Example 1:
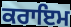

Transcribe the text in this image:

ਕਰਾਇਮ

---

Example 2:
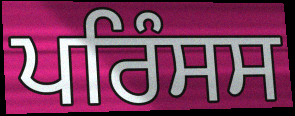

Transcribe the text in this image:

ਪਰਿੰਸਸ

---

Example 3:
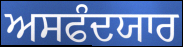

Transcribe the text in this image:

ਅਸਫੰਦਯਾਰ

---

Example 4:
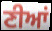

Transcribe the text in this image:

ਣੀਆਂ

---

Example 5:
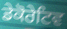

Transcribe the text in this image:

ਡੇਕੋਰੇਟਿਵ